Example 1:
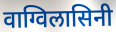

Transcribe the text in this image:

वाग्विलासिनी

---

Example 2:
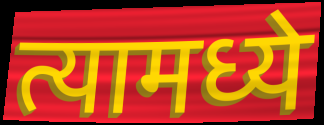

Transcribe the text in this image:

त्यामध्ये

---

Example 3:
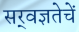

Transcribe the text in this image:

सर्वज्ञतेचें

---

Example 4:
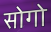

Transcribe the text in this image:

सोगो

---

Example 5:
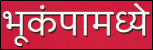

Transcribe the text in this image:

भूकंपामध्ये